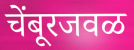
चेंबूरजवळ